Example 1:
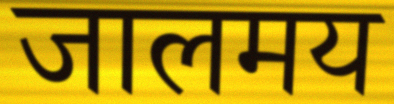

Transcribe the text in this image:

जालमय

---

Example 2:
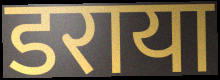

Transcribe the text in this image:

डराया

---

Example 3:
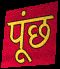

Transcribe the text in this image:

पूंछ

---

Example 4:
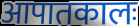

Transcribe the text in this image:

आपातकालः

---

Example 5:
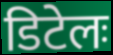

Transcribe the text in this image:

डिटेलः